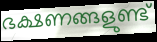
ഭക്ഷണങ്ങളുണ്ട്